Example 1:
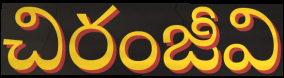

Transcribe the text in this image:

చిరంజీవి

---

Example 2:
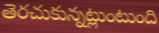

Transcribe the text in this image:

తెరచుకున్నట్లుంటుంది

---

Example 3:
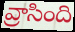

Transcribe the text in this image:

వ్రాసింది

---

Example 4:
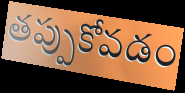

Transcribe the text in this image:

తప్పుకోవడం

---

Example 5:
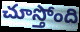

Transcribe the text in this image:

చూస్తోంది